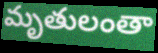
మృతులంతా